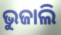
ଭୁଜାଲି